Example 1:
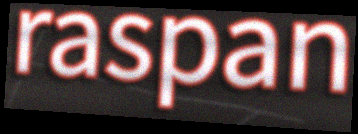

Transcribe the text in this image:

raspan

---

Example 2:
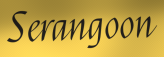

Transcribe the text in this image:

Serangoon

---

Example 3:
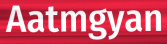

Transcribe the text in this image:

Aatmgyan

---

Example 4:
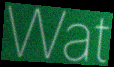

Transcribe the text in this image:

Wat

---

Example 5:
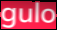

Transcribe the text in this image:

gulo